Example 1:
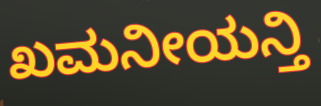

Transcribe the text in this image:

ಖಮನೀಯನ್ತಿ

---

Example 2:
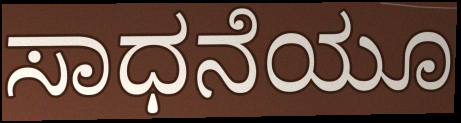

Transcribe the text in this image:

ಸಾಧನೆಯೂ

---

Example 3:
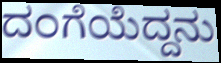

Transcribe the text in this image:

ದಂಗೆಯೆದ್ದನು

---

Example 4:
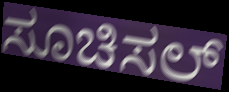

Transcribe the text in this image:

ಸೂಚಿಸಲ್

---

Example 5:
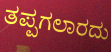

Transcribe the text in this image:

ತಪ್ಪಗಲಾರದು